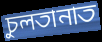
চুলতানাত